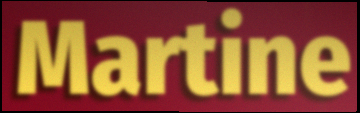
Martine